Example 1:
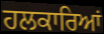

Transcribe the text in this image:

ਹਲਕਾਰਿਆਂ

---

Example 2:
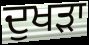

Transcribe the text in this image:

ਦੁਖੜਾ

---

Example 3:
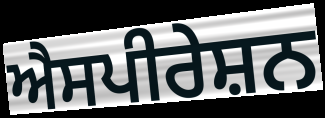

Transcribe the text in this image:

ਐਸਪੀਰੇਸ਼ਨ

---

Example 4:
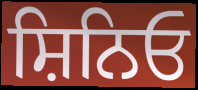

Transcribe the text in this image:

ਸ਼ਿਨਿਓ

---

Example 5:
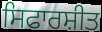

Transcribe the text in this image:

ਸਿਫਾਰਸ਼ੀਤ